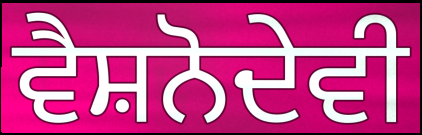
ਵੈਸ਼ਨੋਦੇਵੀ